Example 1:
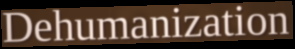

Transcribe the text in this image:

Dehumanization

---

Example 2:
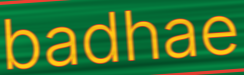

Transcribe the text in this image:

badhae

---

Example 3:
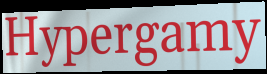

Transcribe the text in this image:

Hypergamy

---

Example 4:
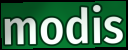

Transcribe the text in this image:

modis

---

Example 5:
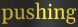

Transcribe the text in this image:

pushing